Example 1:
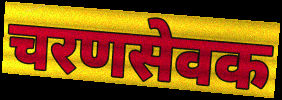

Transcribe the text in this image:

चरणसेवक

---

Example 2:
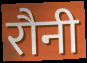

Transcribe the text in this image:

रौनी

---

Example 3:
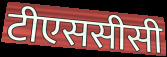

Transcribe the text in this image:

टीएससीसी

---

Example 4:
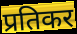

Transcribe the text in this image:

प्रतिकर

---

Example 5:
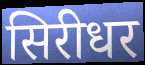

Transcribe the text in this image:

सिरीधर